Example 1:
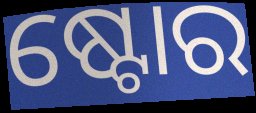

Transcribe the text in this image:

ଷ୍ଟୋର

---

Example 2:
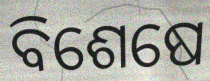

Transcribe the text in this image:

ବିଶେଷେ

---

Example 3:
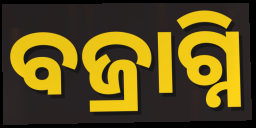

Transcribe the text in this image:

ବଜ୍ରାଗ୍ନି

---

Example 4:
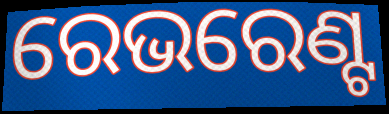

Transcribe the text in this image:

ରେଭରେଣ୍ଟ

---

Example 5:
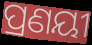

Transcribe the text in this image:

ପ୍ରଣୟୀ